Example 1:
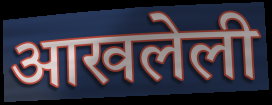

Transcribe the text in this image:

आखलेली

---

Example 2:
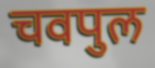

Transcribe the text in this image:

चवपुल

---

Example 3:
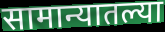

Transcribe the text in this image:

सामान्यातल्या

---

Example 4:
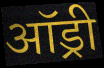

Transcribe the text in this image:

ऑड्री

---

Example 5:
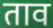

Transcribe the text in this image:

ताव